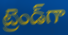
ట్రెండ్‌గా